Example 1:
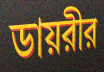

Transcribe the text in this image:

ডায়রীর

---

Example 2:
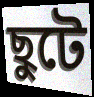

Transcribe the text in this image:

ছুটে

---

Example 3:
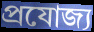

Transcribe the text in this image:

প্রযোজ্য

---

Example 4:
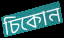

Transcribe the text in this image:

চিকোন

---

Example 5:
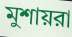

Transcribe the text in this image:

মুশায়রা